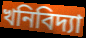
খনিবিদ্যা